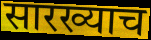
सारख्याच